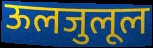
ऊलजुलूल